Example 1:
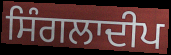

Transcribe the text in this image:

ਸਿੰਗਲਾਦੀਪ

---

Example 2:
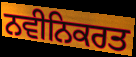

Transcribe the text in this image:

ਨਵੀਨਿਕਰਤ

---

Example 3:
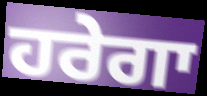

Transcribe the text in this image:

ਹਰੇਗਾ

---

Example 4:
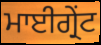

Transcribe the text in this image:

ਮਾਈਗ੍ਰੇਂਟ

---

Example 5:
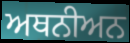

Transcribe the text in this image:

ਅਥਨੀਅਨ